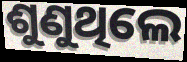
ଶୁଣୁଥିଲେ